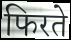
फिरते